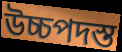
উচ্চপদস্ত